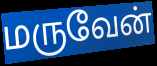
மருவேன்